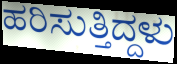
ಹರಿಸುತ್ತಿದ್ದಳು